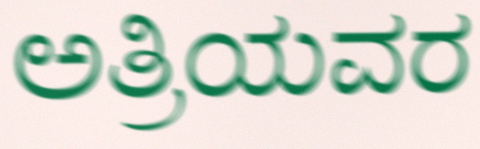
ಅತ್ರಿಯವರ